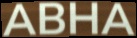
ABHA